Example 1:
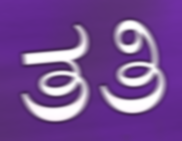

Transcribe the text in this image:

ತತಿ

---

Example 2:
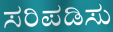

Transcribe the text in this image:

ಸರಿಪಡಿಸು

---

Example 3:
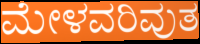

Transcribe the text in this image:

ಮೇಳವರಿವುತ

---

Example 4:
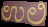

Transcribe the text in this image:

ಉಲಿ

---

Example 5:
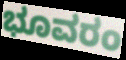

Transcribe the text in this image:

ಭೂವರಂ